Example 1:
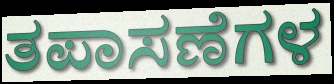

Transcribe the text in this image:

ತಪಾಸಣೆಗಳ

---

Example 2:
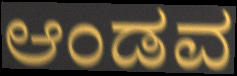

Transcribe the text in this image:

ಆಂಡವ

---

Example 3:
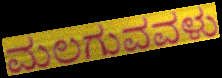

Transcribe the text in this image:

ಮಲಗುವವಳು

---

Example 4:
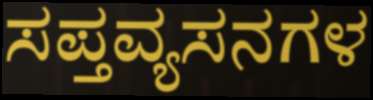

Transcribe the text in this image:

ಸಪ್ತವ್ಯಸನಗಳ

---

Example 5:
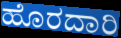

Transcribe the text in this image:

ಹೊರದಾರಿ